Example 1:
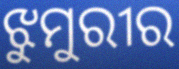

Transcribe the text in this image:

ଝୁମୁରୀର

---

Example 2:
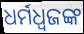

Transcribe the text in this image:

ଧର୍ମଧ୍ୱଜଙ୍କ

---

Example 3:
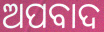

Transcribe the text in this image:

ଅପବାଦ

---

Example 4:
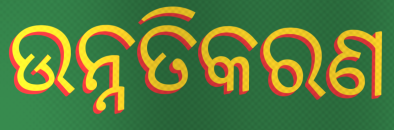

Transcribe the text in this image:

ଉନ୍ନତିକରଣ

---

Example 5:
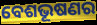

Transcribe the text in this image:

ବେଶଭୂଷଣର